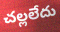
చల్లలేదు